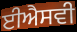
ਈਐਸਵੀ